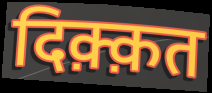
दिक़्क़त